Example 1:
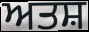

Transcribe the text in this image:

ਅਤਸ਼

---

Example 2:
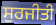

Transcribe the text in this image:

ਸੁਰਜੀਤੀ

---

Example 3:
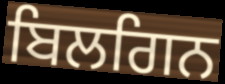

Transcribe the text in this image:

ਬਿਲਗਿਨ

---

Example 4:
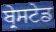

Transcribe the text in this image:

ਬ੍ਰੇਸਟੇਡ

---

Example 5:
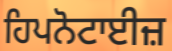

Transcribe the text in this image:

ਹਿਪਨੋਟਾਈਜ਼